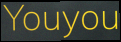
Youyou